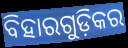
ବିହାରଗୁଡ଼ିକର